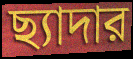
ছ্যাদার